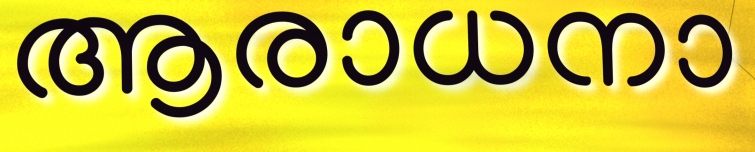
ആരാധനാ